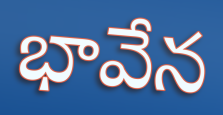
భావేన